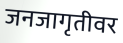
जनजागृतीवर